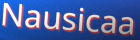
Nausicaa